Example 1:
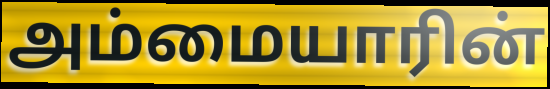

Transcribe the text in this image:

அம்மையாரின்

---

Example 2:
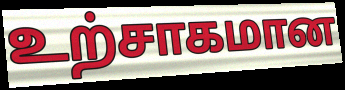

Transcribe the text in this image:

உற்சாகமான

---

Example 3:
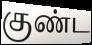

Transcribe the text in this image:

குண்ட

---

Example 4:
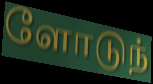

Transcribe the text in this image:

ளோடுந்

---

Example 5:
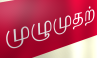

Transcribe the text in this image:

முழுமுதற்